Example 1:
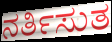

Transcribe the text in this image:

ನರ್ತಿಸುತ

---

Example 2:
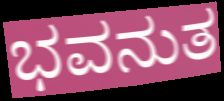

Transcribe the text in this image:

ಭವನುತ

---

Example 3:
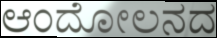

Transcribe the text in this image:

ಆಂದೋಲನದ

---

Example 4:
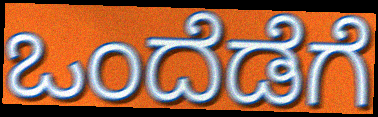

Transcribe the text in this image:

ಒಂದೆಡೆಗೆ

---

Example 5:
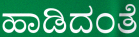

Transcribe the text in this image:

ಹಾಡಿದಂತೆ